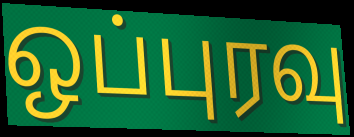
ஒப்புரவு